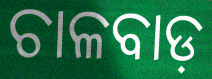
ଚାଳବାଡ଼